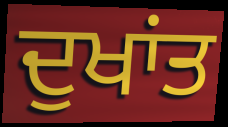
ਦੁਖਾਂਤ